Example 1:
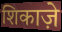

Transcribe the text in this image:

शिकाज़े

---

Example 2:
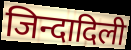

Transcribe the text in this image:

जिन्दादिली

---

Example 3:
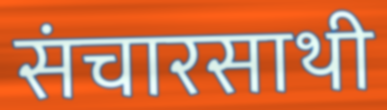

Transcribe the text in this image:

संचारसाथी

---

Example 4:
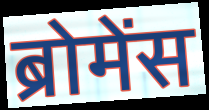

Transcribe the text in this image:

ब्रोमेंस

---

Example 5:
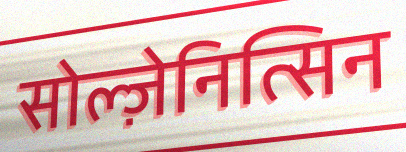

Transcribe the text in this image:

सोल्ज़ेनित्सिन